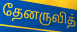
தேனருவித்